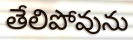
తేలిపోవును